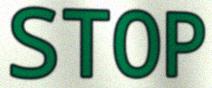
STOP